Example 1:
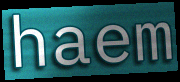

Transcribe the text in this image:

haem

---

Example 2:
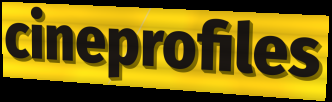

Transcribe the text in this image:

cineprofiles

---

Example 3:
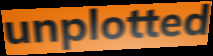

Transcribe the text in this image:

unplotted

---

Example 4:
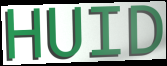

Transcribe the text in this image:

HUID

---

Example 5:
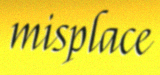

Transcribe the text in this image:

misplace